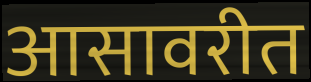
आसावरीत